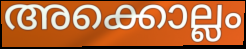
അക്കൊല്ലം